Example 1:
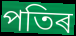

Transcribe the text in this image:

পতিৰ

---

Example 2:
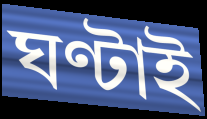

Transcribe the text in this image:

ঘণ্টাই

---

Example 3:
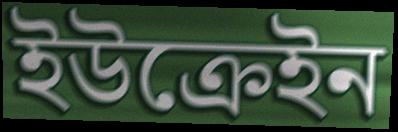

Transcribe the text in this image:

ইউক্ৰেইন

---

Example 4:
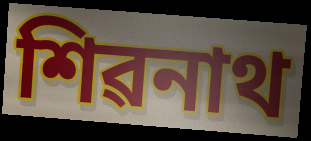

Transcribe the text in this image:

শিৱনাথ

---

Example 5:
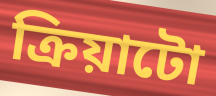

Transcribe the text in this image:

ক্ৰিয়াটো